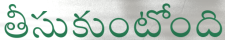
తీసుకుంటోంది